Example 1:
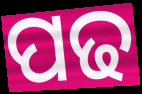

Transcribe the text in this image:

ପଢ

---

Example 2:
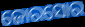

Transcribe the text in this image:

ଜୋରସୋର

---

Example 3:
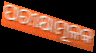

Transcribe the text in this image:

ପରୀକ୍ଷାମୂଳକ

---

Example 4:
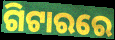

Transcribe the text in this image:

ଗିଟାରରେ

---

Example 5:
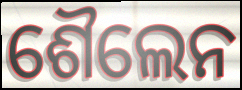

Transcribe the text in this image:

ଶୈଲେନ